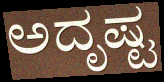
ಅದೃಷ್ಟ